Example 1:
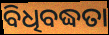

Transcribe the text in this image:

ବିଧିବଦ୍ଧତା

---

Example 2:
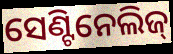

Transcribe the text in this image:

ସେଣ୍ଟିନେଲିଜ୍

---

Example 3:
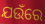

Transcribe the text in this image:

ଯଉଁରେ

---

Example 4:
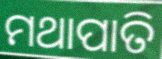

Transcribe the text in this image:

ମଥାପାତି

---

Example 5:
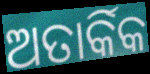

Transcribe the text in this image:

ଅତାର୍କିକ